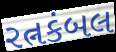
રત્નકંબલ